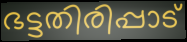
ഭട്ടതിരിപ്പാട്